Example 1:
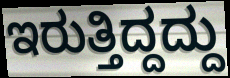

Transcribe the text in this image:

ಇರುತ್ತಿದ್ದದ್ದು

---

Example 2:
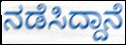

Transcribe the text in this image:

ನಡೆಸಿದ್ದಾನೆ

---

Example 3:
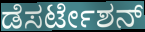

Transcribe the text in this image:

ಡೆಸರ್ಟೇಶನ್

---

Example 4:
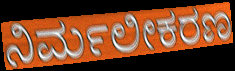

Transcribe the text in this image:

ನಿರ್ಮಲೀಕರಣ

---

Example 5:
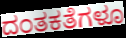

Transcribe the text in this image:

ದಂತಕತೆಗಳೂ